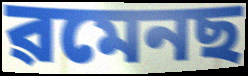
ৱমেনছ